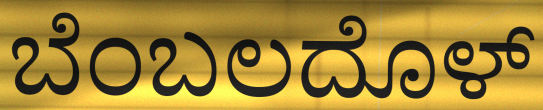
ಬೆಂಬಲದೊಳ್